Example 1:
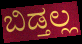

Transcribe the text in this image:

ಬಿಡ್ತಲ್ಲ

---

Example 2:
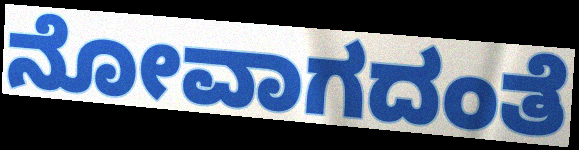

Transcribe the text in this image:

ನೋವಾಗದಂತೆ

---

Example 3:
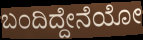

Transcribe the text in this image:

ಬಂದಿದ್ದೇನೆಯೋ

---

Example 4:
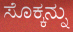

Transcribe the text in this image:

ಸೊಕ್ಕನ್ನು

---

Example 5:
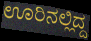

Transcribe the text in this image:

ಊರಿನಲ್ಲಿದ್ದ